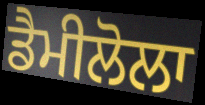
ਡੈਮੀਲੋਲਾ